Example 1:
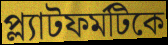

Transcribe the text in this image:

প্ল্যাটফর্মটিকে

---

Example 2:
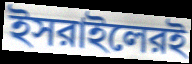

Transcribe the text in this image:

ইসরাইলেরই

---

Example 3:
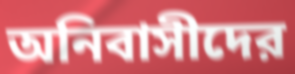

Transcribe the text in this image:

অনিবাসীদের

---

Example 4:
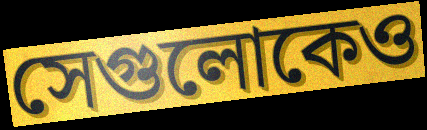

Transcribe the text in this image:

সেগুলোকেও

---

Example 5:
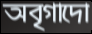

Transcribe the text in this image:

অবৃগাদো